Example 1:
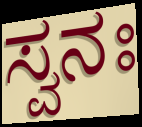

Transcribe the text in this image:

ಸ್ವನಃ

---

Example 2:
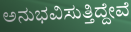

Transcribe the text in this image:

ಅನುಭವಿಸುತ್ತಿದ್ದೇವೆ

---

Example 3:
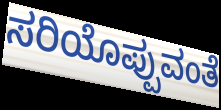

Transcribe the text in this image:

ಸರಿಯೊಪ್ಪುವಂತೆ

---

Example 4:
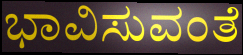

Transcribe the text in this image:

ಭಾವಿಸುವಂತೆ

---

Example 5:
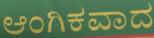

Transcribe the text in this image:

ಆಂಗಿಕವಾದ